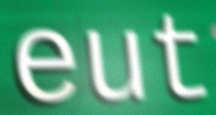
eut